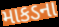
માકડના